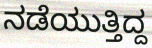
ನಡೆಯುತ್ತಿದ್ದ